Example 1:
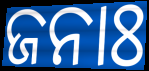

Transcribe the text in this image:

ଜନାଃ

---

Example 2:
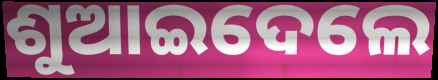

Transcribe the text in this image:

ଶୁଆଇଦେଲେ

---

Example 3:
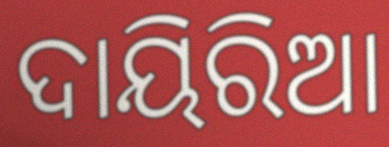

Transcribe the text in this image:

ଦାୟିରିଆ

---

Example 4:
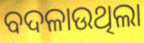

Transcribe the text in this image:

ବଦଳାଉଥିଲା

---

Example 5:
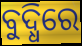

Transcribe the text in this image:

ବୁଦ୍ଧିରେ